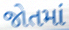
જોતમાં